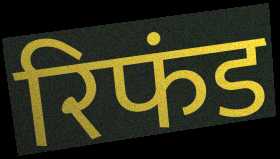
रिफंड